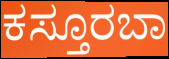
ಕಸ್ತೂರಬಾ